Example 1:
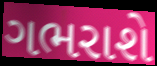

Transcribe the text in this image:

ગભરાશે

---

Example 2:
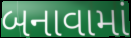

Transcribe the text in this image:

બનાવામાં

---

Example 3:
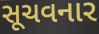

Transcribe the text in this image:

સૂચવનાર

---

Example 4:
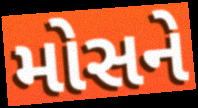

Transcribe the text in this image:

મોસને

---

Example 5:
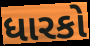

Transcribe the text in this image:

ધારકો